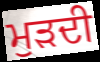
ਮੁੜਦੀ